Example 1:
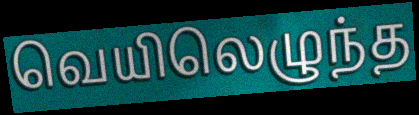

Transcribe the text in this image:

வெயிலெழுந்த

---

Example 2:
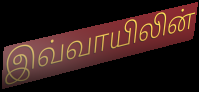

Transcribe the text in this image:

இவ்வாயிலின்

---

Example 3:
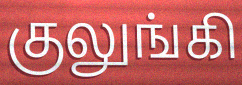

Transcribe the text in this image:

குலுங்கி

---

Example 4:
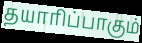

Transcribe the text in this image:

தயாரிப்பாகும்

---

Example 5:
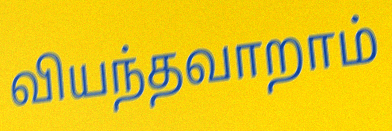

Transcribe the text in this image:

வியந்தவாறாம்